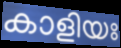
കാളിയഃ